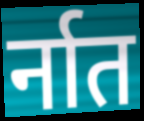
र्नात